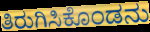
ತಿರುಗಿಸಿಕೊಂಡನು